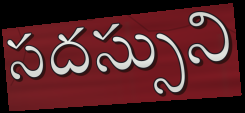
సదస్సుని